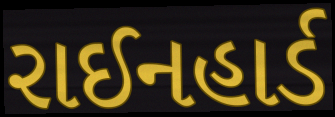
રાઈનહાર્ડ